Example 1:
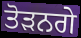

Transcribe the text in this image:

ਤੋੜਨਗੇ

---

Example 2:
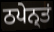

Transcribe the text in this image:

ਠਪੇਨ੍ਤਂ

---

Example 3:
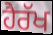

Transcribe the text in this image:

ਹੈਰੱਖ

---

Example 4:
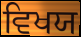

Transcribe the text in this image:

ਵਿਖਯ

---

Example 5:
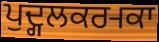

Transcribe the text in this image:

ਪੁਦ੍ਗਲਕਰ੍ਮਕਾ